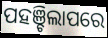
ପହଞ୍ଚିଲାପରେ